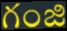
గంజి